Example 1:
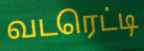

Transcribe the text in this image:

வடரெட்டி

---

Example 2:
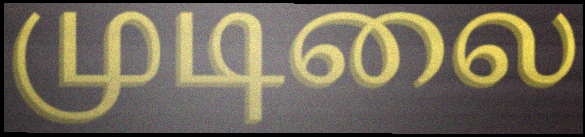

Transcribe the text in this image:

முடிலை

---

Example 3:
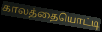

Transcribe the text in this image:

காலத்தையொட்டி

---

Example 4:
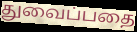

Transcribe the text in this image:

துவைப்பதை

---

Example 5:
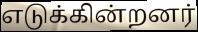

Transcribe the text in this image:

எடுக்கின்றனர்